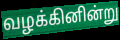
வழக்கினின்று